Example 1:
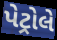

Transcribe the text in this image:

પેટ્રોલે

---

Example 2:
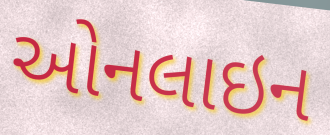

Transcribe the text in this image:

ઓનલાઇન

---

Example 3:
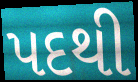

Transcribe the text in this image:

પદથી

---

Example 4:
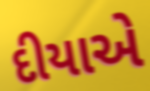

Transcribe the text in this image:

દીયાએ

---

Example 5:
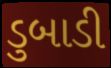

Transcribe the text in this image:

ડુબાડી